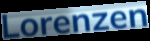
Lorenzen